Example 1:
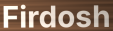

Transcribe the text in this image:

Firdosh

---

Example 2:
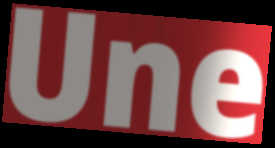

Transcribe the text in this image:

Une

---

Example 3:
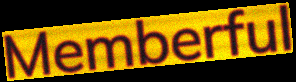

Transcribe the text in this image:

Memberful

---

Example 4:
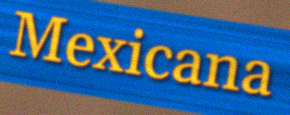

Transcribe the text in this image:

Mexicana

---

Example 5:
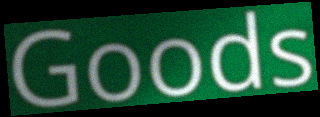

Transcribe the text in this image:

Goods